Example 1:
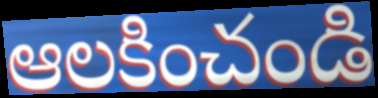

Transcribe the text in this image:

ఆలకించండి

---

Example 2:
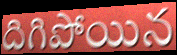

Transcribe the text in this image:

దిగిపోయిన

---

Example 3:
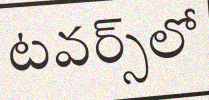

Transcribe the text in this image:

టవర్స్‌లో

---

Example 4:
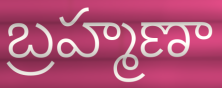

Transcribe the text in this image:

బ్రహ్మణా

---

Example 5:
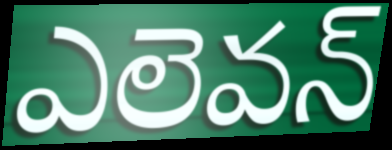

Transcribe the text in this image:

ఎలెవన్